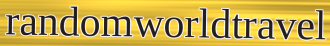
randomworldtravel